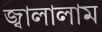
জ্বালালাম